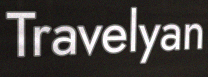
Travelyan